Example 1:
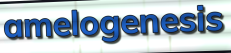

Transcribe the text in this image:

amelogenesis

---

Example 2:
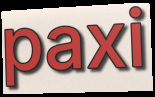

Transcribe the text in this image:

paxi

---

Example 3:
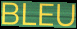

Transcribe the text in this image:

BLEU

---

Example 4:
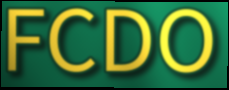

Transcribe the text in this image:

FCDO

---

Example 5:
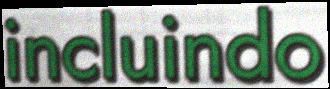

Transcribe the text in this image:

incluindo